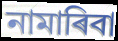
নামাৰিবা